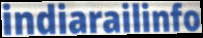
indiarailinfo